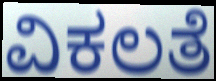
ವಿಕಲತೆ